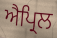
ਐਪ੍ਰਿਲ